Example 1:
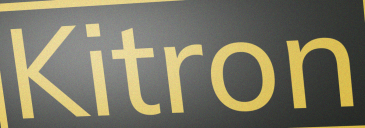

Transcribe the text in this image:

Kitron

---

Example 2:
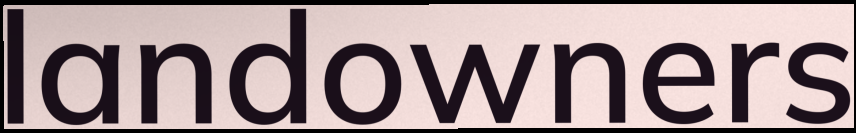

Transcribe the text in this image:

landowners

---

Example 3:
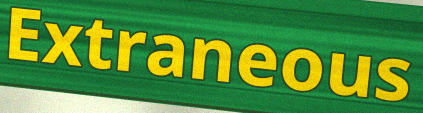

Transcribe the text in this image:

Extraneous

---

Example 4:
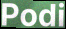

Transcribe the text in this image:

Podi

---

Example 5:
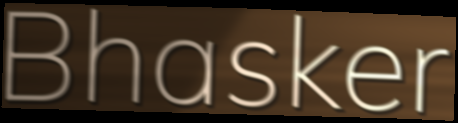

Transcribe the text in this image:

Bhasker